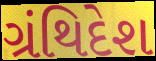
ગ્રંથિદેશ